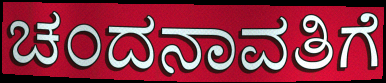
ಚಂದನಾವತಿಗೆ